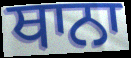
ਥਾਨਾ